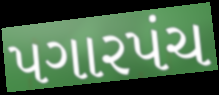
પગારપંચ